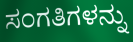
ಸಂಗತಿಗಳನ್ನು